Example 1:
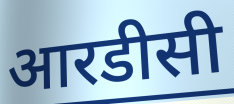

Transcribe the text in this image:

आरडीसी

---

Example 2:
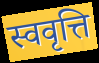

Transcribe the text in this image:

स्ववृत्ति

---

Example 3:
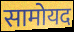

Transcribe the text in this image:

सामोयद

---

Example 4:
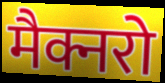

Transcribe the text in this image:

मैक्नरो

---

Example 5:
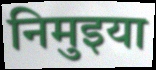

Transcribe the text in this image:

निमुइया